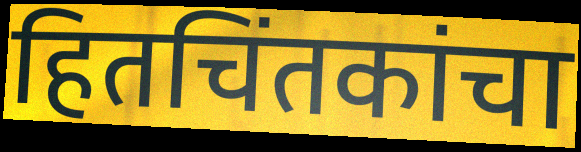
हितचिंतकांचा